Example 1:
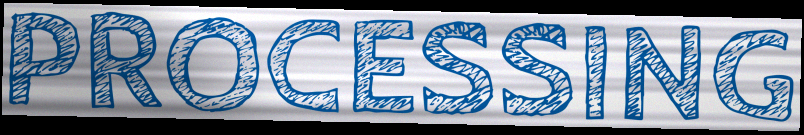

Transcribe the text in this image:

PROCESSING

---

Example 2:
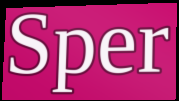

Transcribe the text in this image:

Sper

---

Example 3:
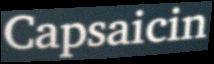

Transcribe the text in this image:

Capsaicin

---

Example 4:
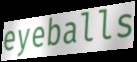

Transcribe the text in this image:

eyeballs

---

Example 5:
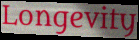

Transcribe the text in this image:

Longevity